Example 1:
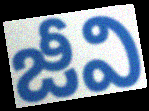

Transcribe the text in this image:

జీవి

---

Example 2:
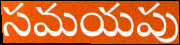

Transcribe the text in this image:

సమయపు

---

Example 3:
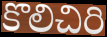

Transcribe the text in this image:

కొలిచిరి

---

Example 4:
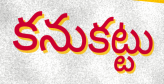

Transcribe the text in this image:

కనుకట్టు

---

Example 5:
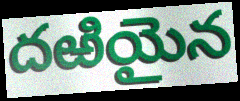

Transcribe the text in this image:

దఱియైన